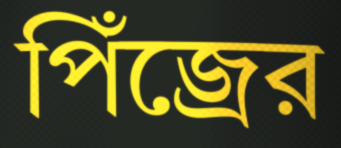
পিঁজ্রের